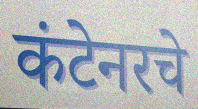
कंटेनरचे